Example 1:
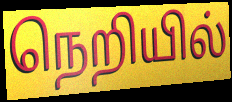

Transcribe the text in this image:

நெறியில்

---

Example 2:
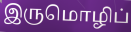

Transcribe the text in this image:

இருமொழிப்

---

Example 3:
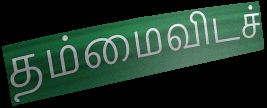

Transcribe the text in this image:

தம்மைவிடச்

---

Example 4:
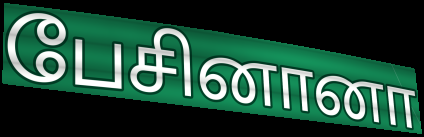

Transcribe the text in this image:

பேசினானா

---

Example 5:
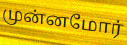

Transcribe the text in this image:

முன்னமோர்